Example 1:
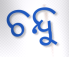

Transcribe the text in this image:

ଚନ୍ଦୁ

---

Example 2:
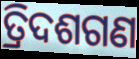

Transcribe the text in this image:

ତ୍ରିଦଶଗଣ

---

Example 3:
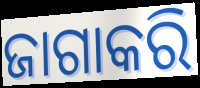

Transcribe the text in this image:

ଜାଗାକରି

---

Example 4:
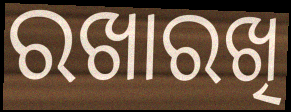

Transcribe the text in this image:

ରଖାରଖି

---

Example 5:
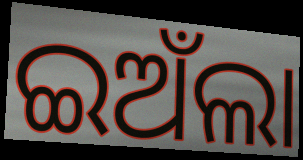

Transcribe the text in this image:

ଇଅଁଲା